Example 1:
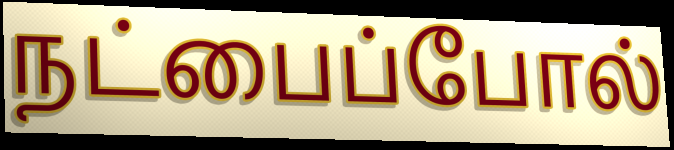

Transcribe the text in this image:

நட்பைப்போல்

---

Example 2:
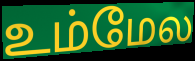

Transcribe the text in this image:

உம்மேல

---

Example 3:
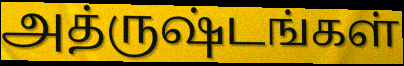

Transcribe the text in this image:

அத்ருஷ்டங்கள்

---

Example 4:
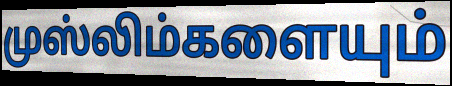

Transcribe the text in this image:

முஸ்லிம்களையும்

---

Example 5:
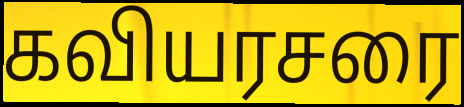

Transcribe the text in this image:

கவியரசரை